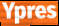
Ypres